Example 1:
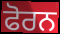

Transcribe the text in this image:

ਫੋਰਨ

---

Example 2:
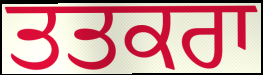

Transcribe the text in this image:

ਤਤਕਰਾ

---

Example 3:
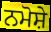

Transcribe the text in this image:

ਨਮੋਸ਼ੇ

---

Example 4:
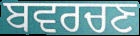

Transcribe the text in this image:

ਬਵਰਚਣ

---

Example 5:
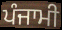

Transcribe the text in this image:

ਪੰਜਾਮੀ